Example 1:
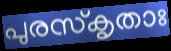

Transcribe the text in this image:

പുരസ്കൃതാഃ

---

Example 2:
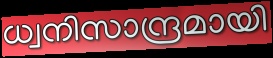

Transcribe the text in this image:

ധ്വനിസാന്ദ്രമായി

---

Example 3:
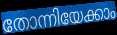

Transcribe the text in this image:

തോന്നിയേക്കാം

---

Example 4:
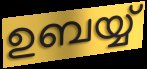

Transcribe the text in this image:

ഉബയ്യ്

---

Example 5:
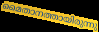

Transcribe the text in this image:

മൈതാനത്തായിരുന്നു